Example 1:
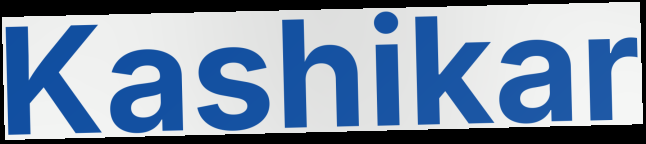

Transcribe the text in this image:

Kashikar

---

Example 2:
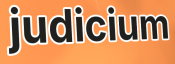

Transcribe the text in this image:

judicium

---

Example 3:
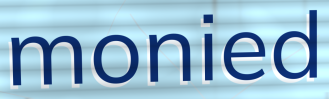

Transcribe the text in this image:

monied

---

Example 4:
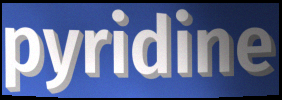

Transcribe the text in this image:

pyridine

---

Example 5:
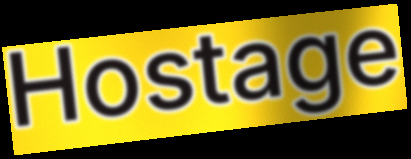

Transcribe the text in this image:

Hostage